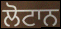
ਲੋਟਾਨ